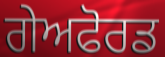
ਗੇਅਫੋਰਡ